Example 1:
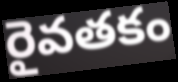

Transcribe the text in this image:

రైవతకం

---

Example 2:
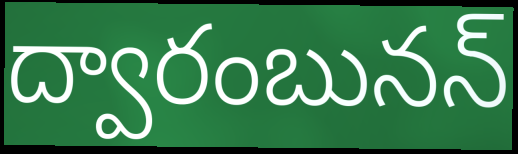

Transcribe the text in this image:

ద్వారంబునన్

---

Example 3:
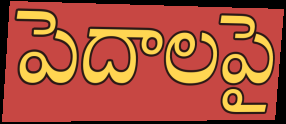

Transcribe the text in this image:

పెదాలపై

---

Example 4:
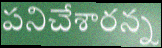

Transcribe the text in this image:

పనిచేశారన్న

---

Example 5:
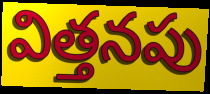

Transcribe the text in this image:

విత్తనపు